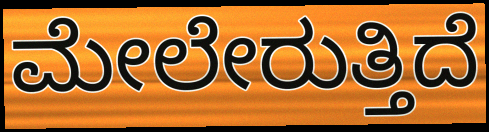
ಮೇಲೇರುತ್ತಿದೆ